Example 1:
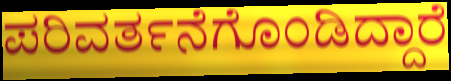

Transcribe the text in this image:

ಪರಿವರ್ತನೆಗೊಂಡಿದ್ದಾರೆ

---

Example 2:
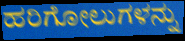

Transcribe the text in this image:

ಹರಿಗೋಲುಗಳನ್ನು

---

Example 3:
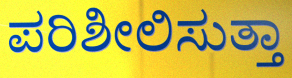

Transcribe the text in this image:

ಪರಿಶೀಲಿಸುತ್ತಾ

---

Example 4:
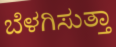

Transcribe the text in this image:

ಬೆಳಗಿಸುತ್ತಾ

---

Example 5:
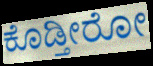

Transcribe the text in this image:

ಕೊಡ್ತೀರೋ